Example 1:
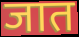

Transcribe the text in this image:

जात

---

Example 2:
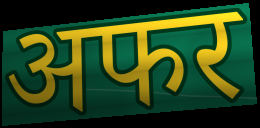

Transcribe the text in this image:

अफर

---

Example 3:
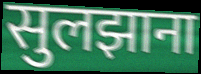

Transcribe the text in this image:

सुलझाना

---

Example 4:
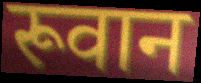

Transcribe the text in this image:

रूवान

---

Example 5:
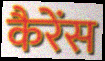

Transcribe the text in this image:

कैरेंस